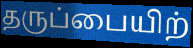
தருப்பையிற்